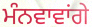
ਮੰਨਵਾਵਾਂਗੇ